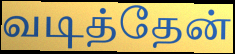
வடித்தேன்